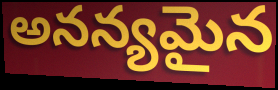
అనన్యమైన